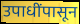
उपाधींपासून